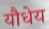
यौधेय